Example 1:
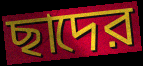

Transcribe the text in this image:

ছাদের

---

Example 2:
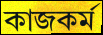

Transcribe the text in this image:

কাজকর্ম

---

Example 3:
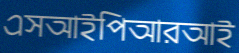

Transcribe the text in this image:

এসআইপিআরআই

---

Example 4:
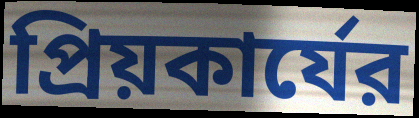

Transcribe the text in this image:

প্রিয়কার্যের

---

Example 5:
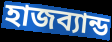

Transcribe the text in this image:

হাজব্যান্ড